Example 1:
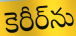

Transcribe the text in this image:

కెరీర్‌ను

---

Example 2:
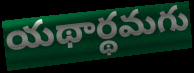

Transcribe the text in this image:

యథార్థమగు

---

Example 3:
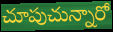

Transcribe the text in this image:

చూపుచున్నారో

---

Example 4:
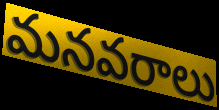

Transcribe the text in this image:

మనవరాలు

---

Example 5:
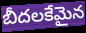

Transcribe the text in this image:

బీదలకేమైన